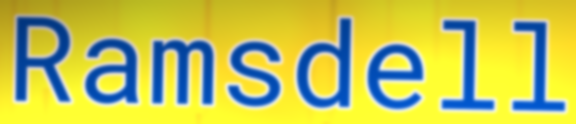
Ramsdell